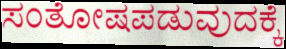
ಸಂತೋಷಪಡುವುದಕ್ಕೆ